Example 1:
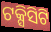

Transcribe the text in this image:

ଟକ୍ସିସିଟି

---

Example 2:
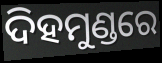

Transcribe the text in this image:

ଦିହମୁଣ୍ଡରେ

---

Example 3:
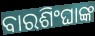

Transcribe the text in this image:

ବାରଶିଂଘାଙ୍କ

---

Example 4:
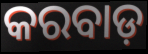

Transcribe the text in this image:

କରବାଡ଼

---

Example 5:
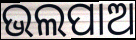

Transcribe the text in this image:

ଭଲପାଅ